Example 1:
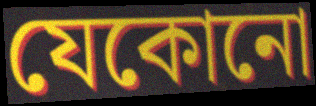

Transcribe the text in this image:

যেকোনো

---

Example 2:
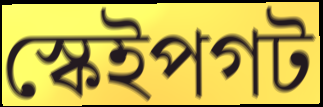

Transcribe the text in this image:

স্কেইপগট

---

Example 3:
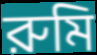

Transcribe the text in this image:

রুমি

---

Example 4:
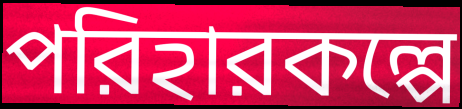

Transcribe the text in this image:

পরিহারকল্পে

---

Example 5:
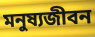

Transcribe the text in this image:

মনুষ্যজীবন